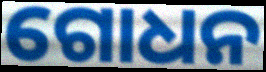
ଗୋଧନ